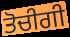
ਤੋਚੀਗੀ